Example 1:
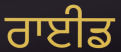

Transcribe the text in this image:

ਰਾਈਡ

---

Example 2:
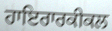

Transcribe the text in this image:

ਹਾਇਰਾਰਕੀਕਲ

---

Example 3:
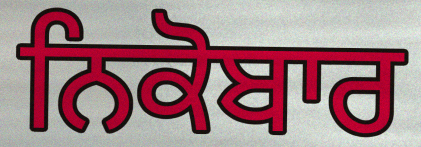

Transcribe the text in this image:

ਨਿਕੋਬਾਰ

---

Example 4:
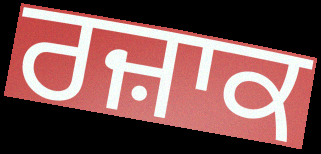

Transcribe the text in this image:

ਰਜ਼ਾਕ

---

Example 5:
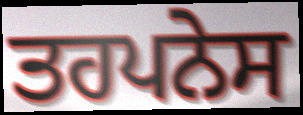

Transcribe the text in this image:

ਤਹਪਨੇਸ